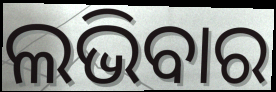
ଲଭିବାର